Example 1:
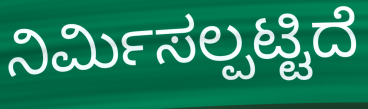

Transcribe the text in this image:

ನಿರ್ಮಿಸಲ್ಪಟ್ಟಿದೆ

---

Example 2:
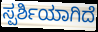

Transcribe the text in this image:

ಸ್ಪರ್ಶಿಯಾಗಿದೆ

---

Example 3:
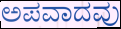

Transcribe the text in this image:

ಅಪವಾದವು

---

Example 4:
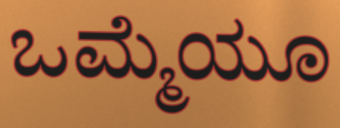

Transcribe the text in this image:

ಒಮ್ಮೆಯೂ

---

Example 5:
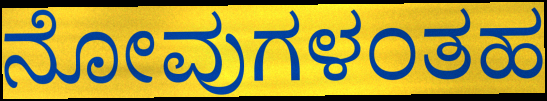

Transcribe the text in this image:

ನೋವುಗಳಂತಹ